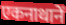
एकनाथानें